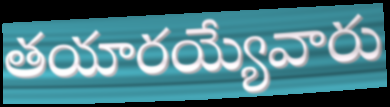
తయారయ్యేవారు